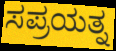
ಸಪ್ರಯತ್ನ